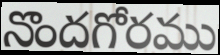
నొందగోరము